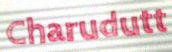
Charudutt